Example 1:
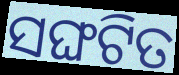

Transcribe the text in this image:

ସଙ୍ଘଟିତ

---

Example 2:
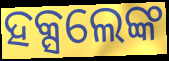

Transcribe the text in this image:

ହକ୍ସଲେଙ୍କ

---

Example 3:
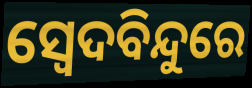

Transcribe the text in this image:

ସ୍ୱେଦବିନ୍ଦୁରେ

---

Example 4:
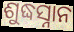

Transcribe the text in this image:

ଶୁଦ୍ଧସ୍ନାନ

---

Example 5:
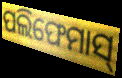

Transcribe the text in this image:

ପଲିଫେମାସ୍